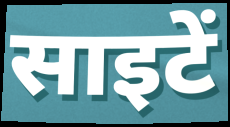
साइटें